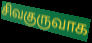
சிவகுருவாக